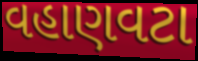
વહાણવટા